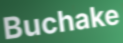
Buchake